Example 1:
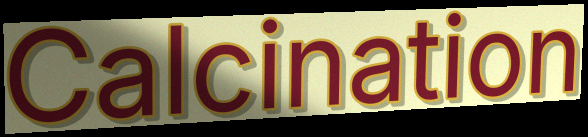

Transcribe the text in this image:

Calcination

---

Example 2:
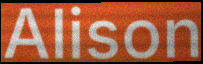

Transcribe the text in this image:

Alison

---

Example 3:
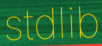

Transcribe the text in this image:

stdlib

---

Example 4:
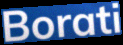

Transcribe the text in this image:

Borati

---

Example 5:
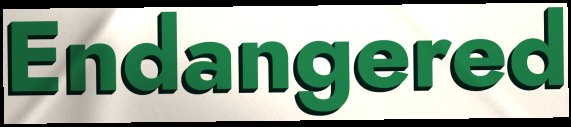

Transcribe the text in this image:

Endangered